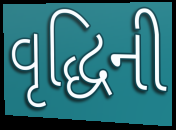
વૃદ્ધિની